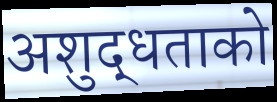
अशुद्धताको